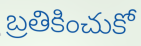
బ్రతికించుకో